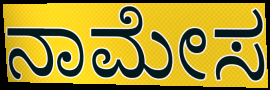
ನಾಮೇಸ